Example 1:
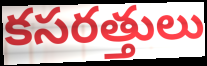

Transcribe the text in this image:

కసరత్తులు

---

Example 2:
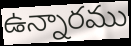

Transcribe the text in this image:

ఉన్నారము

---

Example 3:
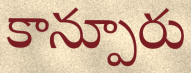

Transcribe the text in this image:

కాన్పూరు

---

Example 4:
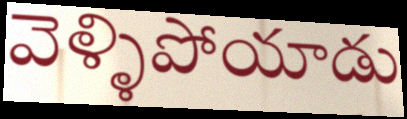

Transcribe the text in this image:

వెళ్ళిపోయాడు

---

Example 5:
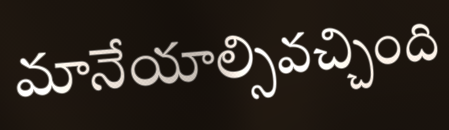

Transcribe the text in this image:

మానేయాల్సివచ్చింది